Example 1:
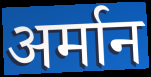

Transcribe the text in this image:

अर्मान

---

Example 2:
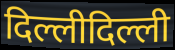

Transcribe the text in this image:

दिल्लीदिल्ली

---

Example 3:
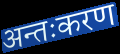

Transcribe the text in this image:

अन्तःकरण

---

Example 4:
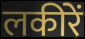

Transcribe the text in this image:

लकीरें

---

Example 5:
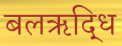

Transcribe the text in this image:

बलऋद्धि